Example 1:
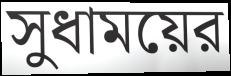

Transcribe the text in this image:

সুধাময়ের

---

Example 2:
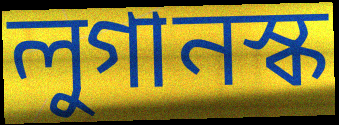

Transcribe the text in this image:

লুগানস্ক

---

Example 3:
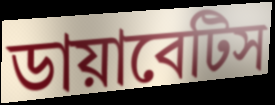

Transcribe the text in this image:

ডায়াবেটিস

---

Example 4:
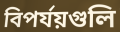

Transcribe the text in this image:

বিপর্যয়গুলি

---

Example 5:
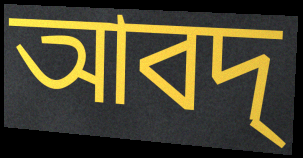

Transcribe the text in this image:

আবদ্